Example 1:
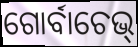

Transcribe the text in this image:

ଗୋର୍ବାଚେଭ୍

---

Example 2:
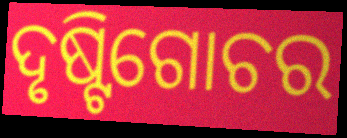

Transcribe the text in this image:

ଦୃଷ୍ଟିଗୋଚର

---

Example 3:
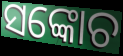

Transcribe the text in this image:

ସଙ୍କୋଚ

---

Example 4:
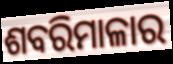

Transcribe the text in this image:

ଶବରିମାଳାର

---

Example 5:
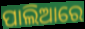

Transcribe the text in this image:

ପାଲିଆରେ